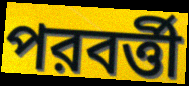
পরবর্ত্তী